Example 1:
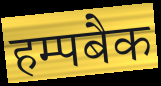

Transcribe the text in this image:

हम्पबैक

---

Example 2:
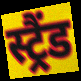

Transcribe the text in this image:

स्ट्रैंड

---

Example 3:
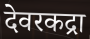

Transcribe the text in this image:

देवरकद्रा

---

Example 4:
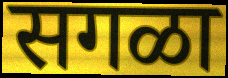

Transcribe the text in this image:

सगळा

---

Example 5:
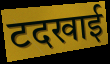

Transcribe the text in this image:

टदखाई